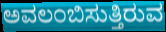
ಅವಲಂಬಿಸುತ್ತಿರುವ